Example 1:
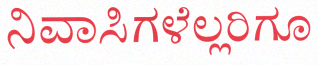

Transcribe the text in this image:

ನಿವಾಸಿಗಳೆಲ್ಲರಿಗೂ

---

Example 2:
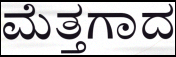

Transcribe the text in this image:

ಮೆತ್ತಗಾದ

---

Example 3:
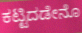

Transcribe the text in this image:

ಕಟ್ಟಿದಡೇನೊ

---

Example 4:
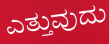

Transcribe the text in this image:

ಎತ್ತುವುದು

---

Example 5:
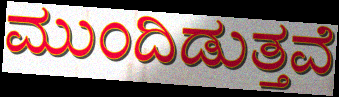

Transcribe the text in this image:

ಮುಂದಿಡುತ್ತವೆ